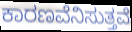
ಕಾರಣವೆನಿಸುತ್ತವೆ